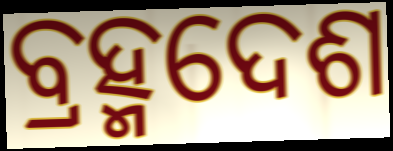
ବ୍ରହ୍ମଦେଶ